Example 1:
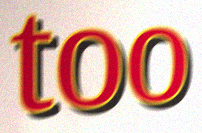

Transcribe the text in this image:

too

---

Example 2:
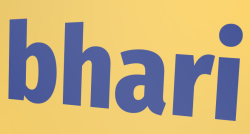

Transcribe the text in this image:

bhari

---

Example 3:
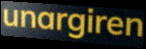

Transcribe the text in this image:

unargiren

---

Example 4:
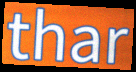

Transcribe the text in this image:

thar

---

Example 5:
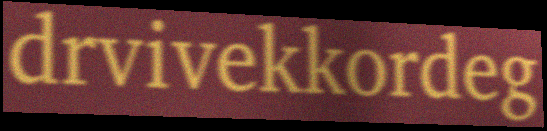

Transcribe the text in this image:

drvivekkordeg